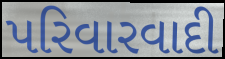
પરિવારવાદી